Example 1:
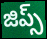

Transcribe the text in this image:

జిప్స్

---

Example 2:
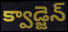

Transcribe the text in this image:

క్వాడ్జెన్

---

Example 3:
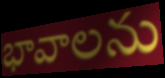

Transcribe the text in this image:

భావాలను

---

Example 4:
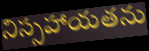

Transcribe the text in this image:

నిస్సహాయతను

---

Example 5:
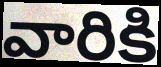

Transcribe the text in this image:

వారికి